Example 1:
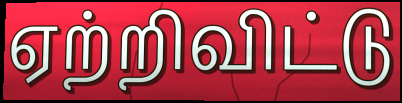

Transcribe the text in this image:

ஏற்றிவிட்டு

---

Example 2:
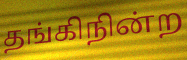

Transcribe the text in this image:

தங்கிநின்ற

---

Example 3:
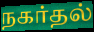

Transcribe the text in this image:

நகர்தல்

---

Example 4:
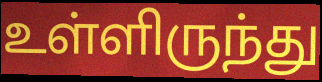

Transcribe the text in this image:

உள்ளிருந்து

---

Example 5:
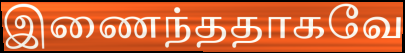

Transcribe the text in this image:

இணைந்ததாகவே